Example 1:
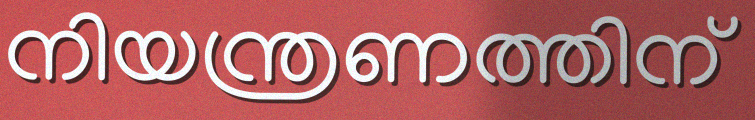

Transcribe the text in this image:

നിയന്ത്രണത്തിന്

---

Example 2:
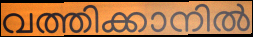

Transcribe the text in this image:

വത്തിക്കാനിൽ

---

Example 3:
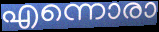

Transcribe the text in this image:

എന്നൊരാ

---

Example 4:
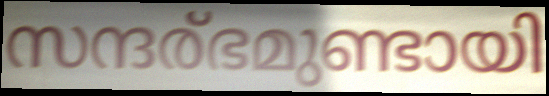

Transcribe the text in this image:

സന്ദര്ഭമുണ്ടായി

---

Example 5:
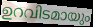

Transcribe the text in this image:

ഉറവിടമായും